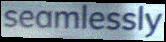
seamlessly